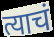
त्याचं